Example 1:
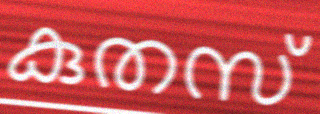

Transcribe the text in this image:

കുതസ്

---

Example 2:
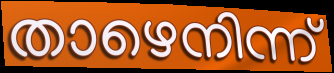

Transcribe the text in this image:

താഴെനിന്ന്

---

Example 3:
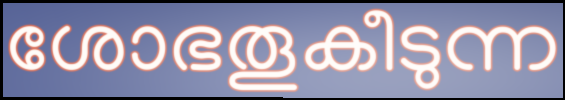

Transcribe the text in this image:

ശോഭതൂകീടുന്ന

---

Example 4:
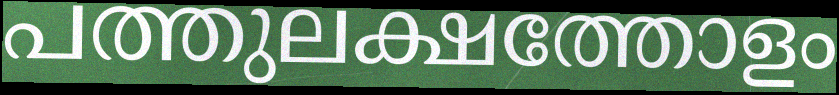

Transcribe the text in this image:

പത്തുലക്ഷത്തോളം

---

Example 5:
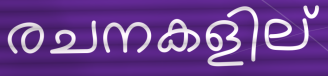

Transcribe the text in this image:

രചനകളില്